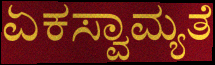
ಏಕಸ್ವಾಮ್ಯತೆ